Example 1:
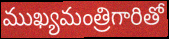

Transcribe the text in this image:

ముఖ్యమంత్రిగారితో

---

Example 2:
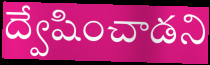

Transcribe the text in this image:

ద్వేషించాడని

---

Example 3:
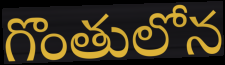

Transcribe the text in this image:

గొంతులోన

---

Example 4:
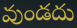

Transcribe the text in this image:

వుండదు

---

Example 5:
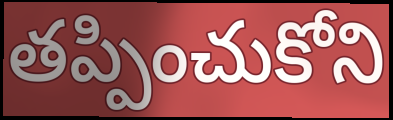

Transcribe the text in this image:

తప్పించుకోని